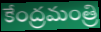
కేంద్రమంత్రి